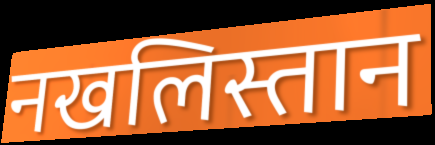
नखलिस्तान